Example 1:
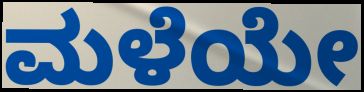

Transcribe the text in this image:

ಮಳೆಯೇ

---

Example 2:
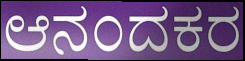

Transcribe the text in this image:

ಆನಂದಕರ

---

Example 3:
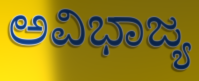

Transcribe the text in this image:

ಅವಿಭಾಜ್ಯ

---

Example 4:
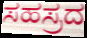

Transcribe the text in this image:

ಸಹಸ್ರದ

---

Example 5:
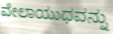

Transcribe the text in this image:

ವೇಲಾಯುಧವನ್ನು